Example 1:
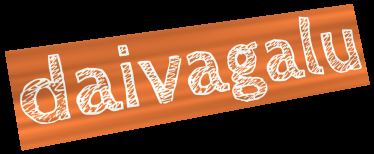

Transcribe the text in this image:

daivagalu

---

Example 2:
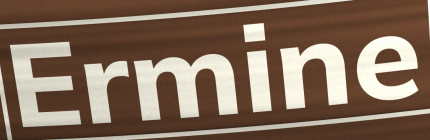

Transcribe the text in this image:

Ermine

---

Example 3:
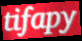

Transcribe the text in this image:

tifapy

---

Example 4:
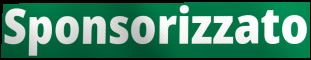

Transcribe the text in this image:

Sponsorizzato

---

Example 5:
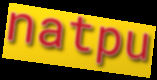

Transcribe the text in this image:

natpu